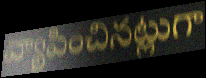
వ్యాపించినట్లుగా